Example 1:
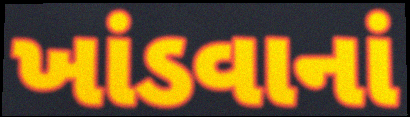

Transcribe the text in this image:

ખાંડવાનાં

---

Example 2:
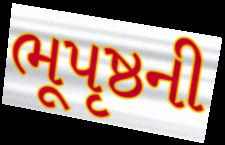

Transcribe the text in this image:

ભૂપૃષ્ઠની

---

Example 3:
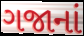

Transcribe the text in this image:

ગજાનાં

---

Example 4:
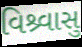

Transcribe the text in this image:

વિશ્ર્વાસુ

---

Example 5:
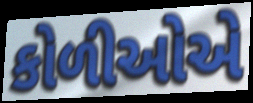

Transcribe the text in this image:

કોળીઓએ